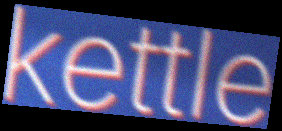
kettle